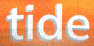
tide